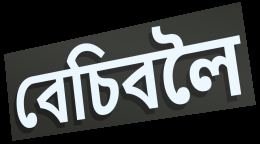
বেচিবলৈ